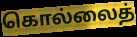
கொல்லைத்